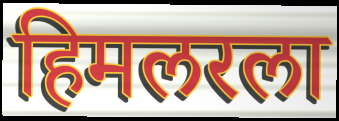
हिमलरला